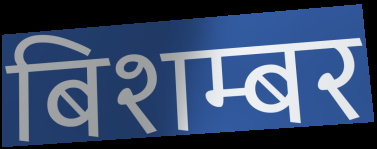
बिशम्बर